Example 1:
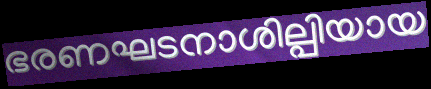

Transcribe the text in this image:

ഭരണഘടനാശില്പിയായ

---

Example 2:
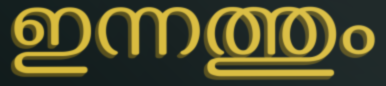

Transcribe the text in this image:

ഇന്നത്തും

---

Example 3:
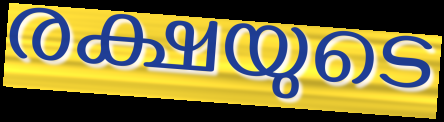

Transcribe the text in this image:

രക്ഷയുടെ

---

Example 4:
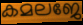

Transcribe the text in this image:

കമലജേ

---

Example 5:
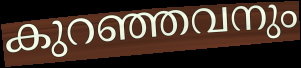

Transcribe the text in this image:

കുറഞ്ഞവനും